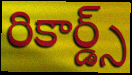
రికార్డ్స్